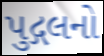
પુદ્ગલનો